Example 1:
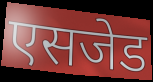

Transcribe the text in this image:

एसजेड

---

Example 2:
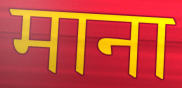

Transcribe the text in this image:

माना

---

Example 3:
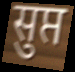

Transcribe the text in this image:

सुप्त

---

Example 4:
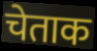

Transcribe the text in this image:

चेताक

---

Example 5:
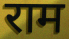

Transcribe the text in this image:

राम